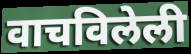
वाचविलेली